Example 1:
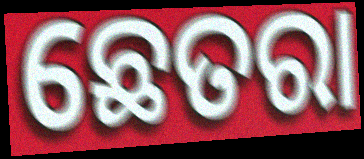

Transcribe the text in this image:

ଛେତରା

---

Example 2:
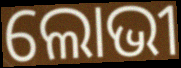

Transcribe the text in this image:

ଲୋଭୀ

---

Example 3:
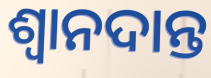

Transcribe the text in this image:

ଶ୍ଵାନଦାନ୍ତ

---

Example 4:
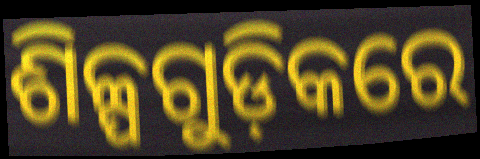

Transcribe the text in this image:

ଶିଳ୍ପଗୁଡ଼ିକରେ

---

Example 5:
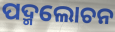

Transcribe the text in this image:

ପଦ୍ମଲୋଚନ